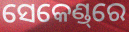
ସେକେଣ୍ଡ୍‌ରେ